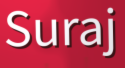
Suraj